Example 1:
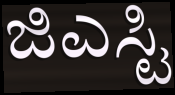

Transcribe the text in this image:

ಜಿಎಸ್ಟಿ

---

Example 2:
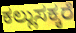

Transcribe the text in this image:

ಕಲ್ಲುಸಕ್ಕರೆ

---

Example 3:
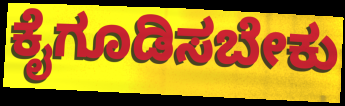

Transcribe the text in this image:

ಕೈಗೂಡಿಸಬೇಕು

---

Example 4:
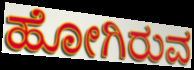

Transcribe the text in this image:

ಹೋಗಿರುವ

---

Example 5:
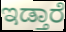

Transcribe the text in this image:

ಇಡ್ತಾರೆ